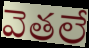
వెతలే